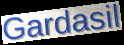
Gardasil